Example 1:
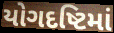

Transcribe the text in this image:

યોગદષ્ટિમાં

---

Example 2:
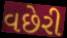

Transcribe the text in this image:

વછેરી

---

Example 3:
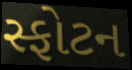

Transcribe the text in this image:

સ્ફોટન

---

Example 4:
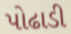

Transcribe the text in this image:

પોઢાડી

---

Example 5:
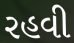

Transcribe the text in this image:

રહવી